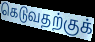
கெடுவதற்குக்